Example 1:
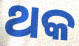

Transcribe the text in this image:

ଥକ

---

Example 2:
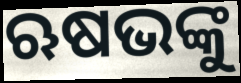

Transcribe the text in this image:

ଋଷଭଙ୍କୁ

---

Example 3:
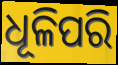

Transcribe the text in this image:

ଧୂଳିପରି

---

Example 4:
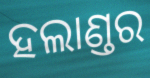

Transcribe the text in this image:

ହଲାଣ୍ଡର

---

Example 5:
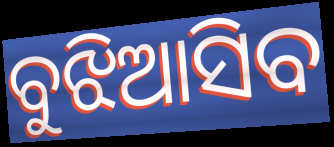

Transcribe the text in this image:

ବୁଝିଆସିବ